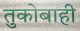
तुकोबाही